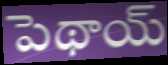
పెథాయ్